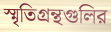
স্মৃতিগ্রন্থগুলির